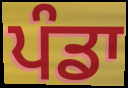
ਪੰਡਾ